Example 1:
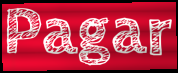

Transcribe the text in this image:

Pagar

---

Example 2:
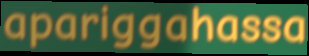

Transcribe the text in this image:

apariggahassa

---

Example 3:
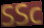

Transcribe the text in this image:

SSc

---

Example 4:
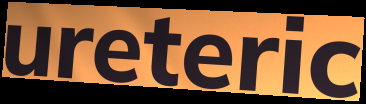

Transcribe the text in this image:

ureteric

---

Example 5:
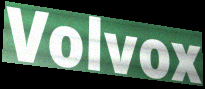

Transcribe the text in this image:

Volvox